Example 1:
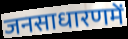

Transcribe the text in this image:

जनसाधारणमें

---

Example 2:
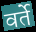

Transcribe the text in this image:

वर्ते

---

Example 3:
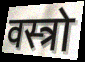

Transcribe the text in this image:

वस्त्रो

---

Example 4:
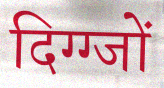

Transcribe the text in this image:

दिग्ग्जों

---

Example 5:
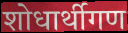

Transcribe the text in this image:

शोधार्थीगण